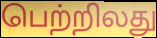
பெற்றிலது